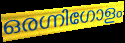
ഒരഗ്നിഗോളം